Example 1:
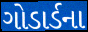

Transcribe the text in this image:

ગોડાર્ડના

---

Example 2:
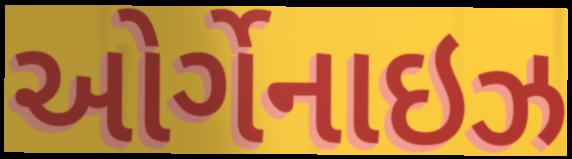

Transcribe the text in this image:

ઓર્ગેનાઇઝ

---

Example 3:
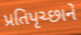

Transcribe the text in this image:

પ્રતિપૃચ્છાને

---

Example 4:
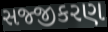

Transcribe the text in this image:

સજ્જીકરણ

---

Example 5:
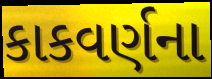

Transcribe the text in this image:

કાકવર્ણના